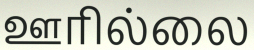
ஊரில்லை